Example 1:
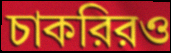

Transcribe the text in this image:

চাকরিরও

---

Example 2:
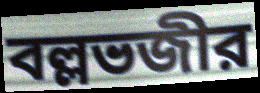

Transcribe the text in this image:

বল্লভজীর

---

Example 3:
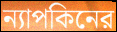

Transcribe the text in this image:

ন্যাপকিনের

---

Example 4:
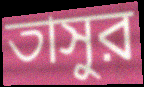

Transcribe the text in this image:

তাসুর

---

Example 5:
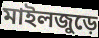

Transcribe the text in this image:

মাইলজুড়ে